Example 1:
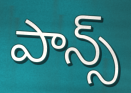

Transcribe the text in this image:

పాన్స్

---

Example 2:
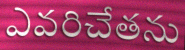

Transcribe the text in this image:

ఎవరిచేతను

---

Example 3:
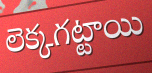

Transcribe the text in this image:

లెక్కగట్టాయి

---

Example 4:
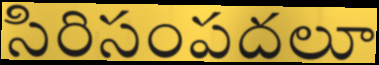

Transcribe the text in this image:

సిరిసంపదలూ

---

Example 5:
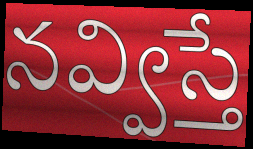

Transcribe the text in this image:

నవ్విస్తే